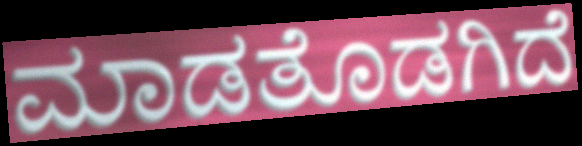
ಮಾಡತೊಡಗಿದೆ